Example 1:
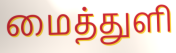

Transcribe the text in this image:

மைத்துளி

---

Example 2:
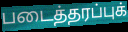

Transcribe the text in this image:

படைத்தரப்புக்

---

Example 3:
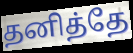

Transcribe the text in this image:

தனித்தே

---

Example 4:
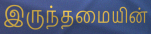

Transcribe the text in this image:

இருந்தமையின்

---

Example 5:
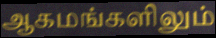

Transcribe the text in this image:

ஆகமங்களிலும்